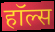
हॉल्स